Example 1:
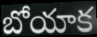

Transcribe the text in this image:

బోయాక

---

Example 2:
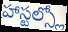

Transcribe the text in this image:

హాస్టల్స్లో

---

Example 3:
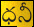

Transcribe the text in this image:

ధనీ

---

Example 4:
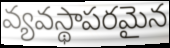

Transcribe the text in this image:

వ్యవస్థాపరమైన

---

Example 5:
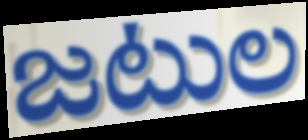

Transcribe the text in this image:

జటుల